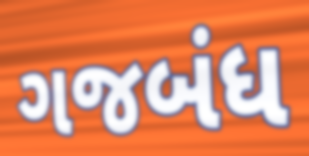
ગજબંધ